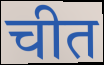
चीत